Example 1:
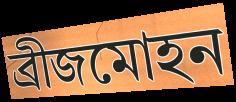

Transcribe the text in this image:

ব্রীজমোহন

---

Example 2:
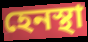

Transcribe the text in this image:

হেনস্থা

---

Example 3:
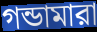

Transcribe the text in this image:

গন্ডামারা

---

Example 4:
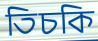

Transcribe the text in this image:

তিচকি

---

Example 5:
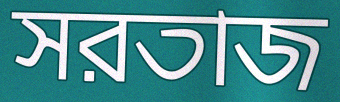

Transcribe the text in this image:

সরতাজ